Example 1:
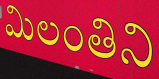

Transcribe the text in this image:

మిలంతిని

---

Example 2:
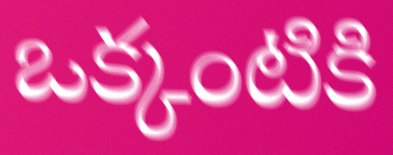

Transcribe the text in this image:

ఒక్కంటికి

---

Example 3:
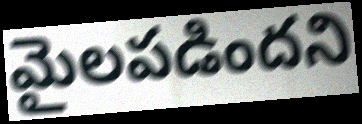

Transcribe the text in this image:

మైలపడిందని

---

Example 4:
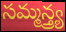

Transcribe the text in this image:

సమ్మన్త్ర్య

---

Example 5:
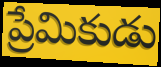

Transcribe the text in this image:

ప్రేమికుడు